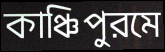
কাঞ্চিপুরমে